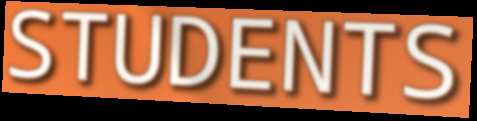
STUDENTS